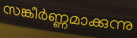
സങ്കീർണ്ണമാക്കുന്നു